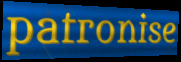
patronise